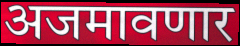
अजमावणार